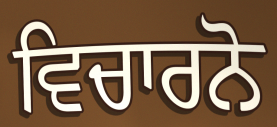
ਵਿਚਾਰਨੋ